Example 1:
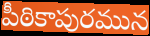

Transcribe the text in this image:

పీఠికాపురమున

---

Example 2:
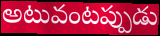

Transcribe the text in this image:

అటువంటప్పుడు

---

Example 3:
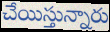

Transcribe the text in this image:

చేయిస్తున్నారు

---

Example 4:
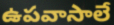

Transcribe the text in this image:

ఉపవాసాలే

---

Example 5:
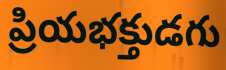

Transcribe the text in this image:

ప్రియభక్తుడగు